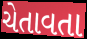
ચેતાવતા